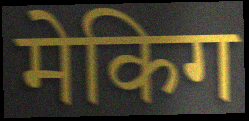
मेकिग